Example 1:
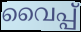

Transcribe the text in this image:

വൈപ്പ്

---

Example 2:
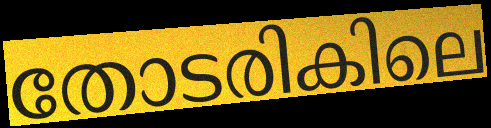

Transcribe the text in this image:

തോടരികിലെ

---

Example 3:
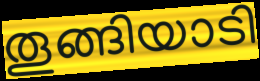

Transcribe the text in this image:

തൂങ്ങിയാടി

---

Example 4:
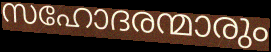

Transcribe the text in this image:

സഹോദരന്മാരും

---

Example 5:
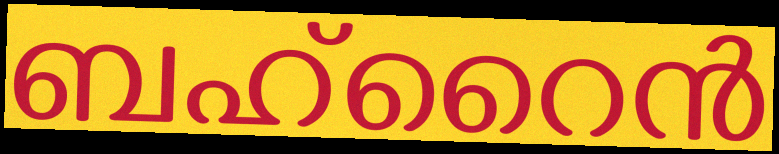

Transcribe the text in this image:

ബഹ്റൈൻ